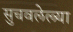
सुचवलेल्या